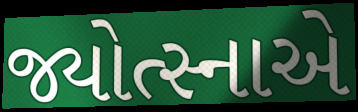
જ્યોત્સ્નાએ